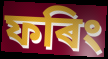
ফৰিং